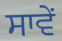
ਸਾਵੇਂ